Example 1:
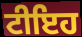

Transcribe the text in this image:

ਟੀਇਹ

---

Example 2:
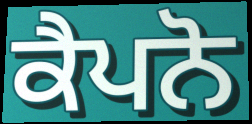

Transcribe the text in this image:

ਕੈਪਨੋ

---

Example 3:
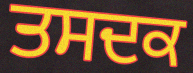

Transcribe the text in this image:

ਤਸਦਕ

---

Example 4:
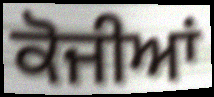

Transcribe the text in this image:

ਕੋਜੀਆਂ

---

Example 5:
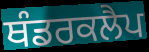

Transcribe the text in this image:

ਥੰਡਰਕਲੈਪ